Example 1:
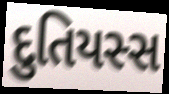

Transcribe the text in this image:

દુતિયસ્સ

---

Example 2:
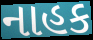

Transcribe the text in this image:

નાહક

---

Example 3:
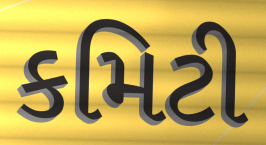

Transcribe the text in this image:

કમિટી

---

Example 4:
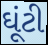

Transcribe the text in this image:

ઘૂંટી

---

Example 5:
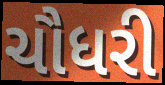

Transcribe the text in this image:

ચૌધરી